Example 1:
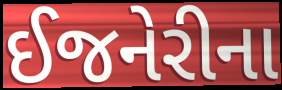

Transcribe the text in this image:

ઈજનેરીના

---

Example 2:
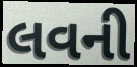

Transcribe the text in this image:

લવની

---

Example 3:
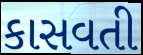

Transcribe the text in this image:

કાસવતી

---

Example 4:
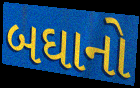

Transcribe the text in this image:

બઘાનો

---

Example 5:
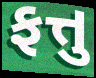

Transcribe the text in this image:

ફત્તુ